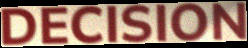
DECISION